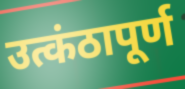
उत्कंठापूर्ण